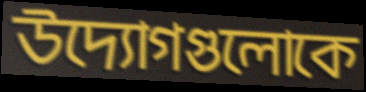
উদ্যোগগুলোকে